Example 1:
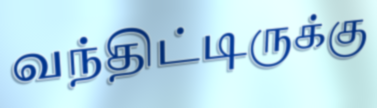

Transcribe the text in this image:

வந்திட்டிருக்கு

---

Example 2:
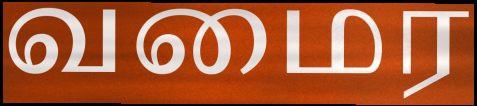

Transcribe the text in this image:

வமைர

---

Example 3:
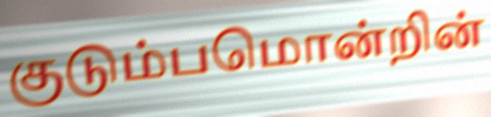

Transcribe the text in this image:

குடும்பமொன்றின்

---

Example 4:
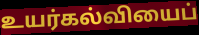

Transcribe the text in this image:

உயர்கல்வியைப்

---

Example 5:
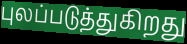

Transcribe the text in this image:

புலப்படுத்துகிறது